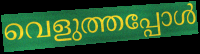
വെളുത്തപ്പോൾ